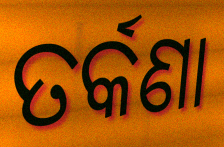
ତର୍କଣା